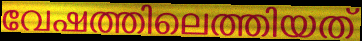
വേഷത്തിലെത്തിയത്